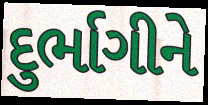
દુર્ભાગીને